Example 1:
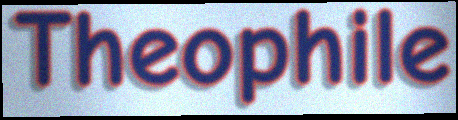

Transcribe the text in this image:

Theophile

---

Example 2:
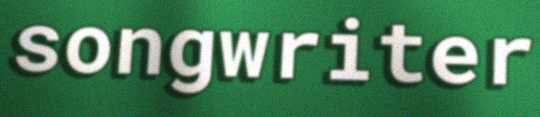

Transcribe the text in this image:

songwriter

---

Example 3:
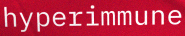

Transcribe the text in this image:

hyperimmune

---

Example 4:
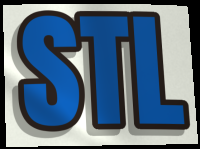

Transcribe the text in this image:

STL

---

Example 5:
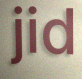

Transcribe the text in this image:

jid